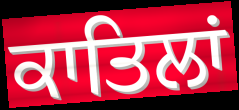
ਕਾਤਿਲਾਂ